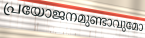
പ്രയോജനമുണ്ടാവുമോ